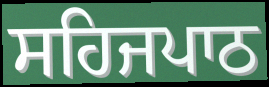
ਸਹਿਜਪਾਠ